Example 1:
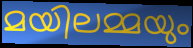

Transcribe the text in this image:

മയിലമ്മയും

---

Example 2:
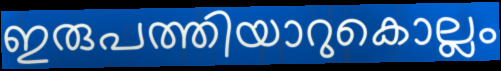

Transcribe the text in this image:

ഇരുപത്തിയാറുകൊല്ലം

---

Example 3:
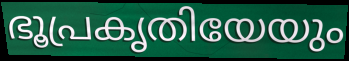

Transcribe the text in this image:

ഭൂപ്രകൃതിയേയും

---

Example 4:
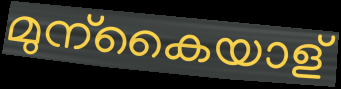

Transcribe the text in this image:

മുന്കൈയാള്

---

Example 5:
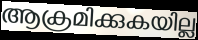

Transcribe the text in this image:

ആക്രമിക്കുകയില്ല